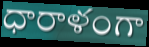
ధారాళంగా